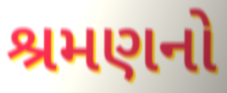
શ્રમણનો